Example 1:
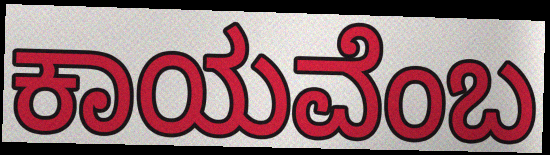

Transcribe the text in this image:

ಕಾಯವೆಂಬ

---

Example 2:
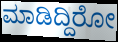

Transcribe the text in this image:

ಮಾಡಿದ್ದಿರೋ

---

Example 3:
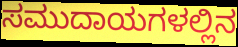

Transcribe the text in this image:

ಸಮುದಾಯಗಳಲ್ಲಿನ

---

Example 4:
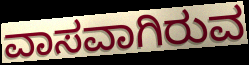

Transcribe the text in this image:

ವಾಸವಾಗಿರುವ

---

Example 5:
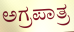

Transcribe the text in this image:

ಅಗ್ರಪಾತ್ರ